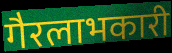
गैरलाभकारी